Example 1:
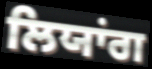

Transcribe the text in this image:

ਲਿਯਾਂਗ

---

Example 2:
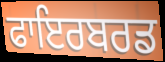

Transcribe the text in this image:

ਫਾਇਰਬਰਡ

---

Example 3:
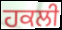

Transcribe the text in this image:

ਹਕਲੀ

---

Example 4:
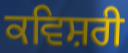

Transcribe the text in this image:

ਕਵਿਸ਼ਰੀ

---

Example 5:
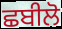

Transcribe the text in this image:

ਛਬੀਲੋ